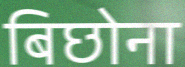
बिछोना